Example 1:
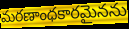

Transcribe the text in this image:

మరణాంధకారమైనను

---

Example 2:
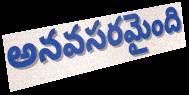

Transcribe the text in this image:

అనవసరమైంది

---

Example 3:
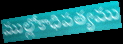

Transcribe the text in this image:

ముల్లోకాధిపత్యము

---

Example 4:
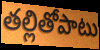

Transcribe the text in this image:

తల్లితోపాటు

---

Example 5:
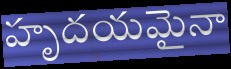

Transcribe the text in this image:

హృదయమైనా